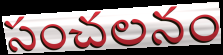
సంచలనం